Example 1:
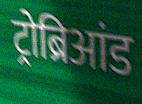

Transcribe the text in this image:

ट्रोब्रिआंड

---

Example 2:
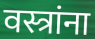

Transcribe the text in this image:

वस्त्रांना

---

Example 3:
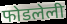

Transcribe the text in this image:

फोडलेली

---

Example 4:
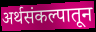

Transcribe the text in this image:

अर्थसंकल्पातून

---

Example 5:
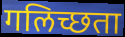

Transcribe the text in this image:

गलिच्छता